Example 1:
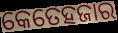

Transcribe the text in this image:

କେତେହଜାର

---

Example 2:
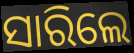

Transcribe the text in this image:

ସାରିଲେ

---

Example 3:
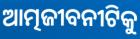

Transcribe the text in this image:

ଆତ୍ମଜୀବନୀଟିକୁ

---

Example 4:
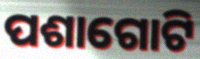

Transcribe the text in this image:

ପଶାଗୋଟି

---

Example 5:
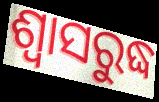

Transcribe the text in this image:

ଶ୍ବାସରୁଦ୍ଧ